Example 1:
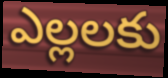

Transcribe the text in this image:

ఎల్లలకు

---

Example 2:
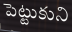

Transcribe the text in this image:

పెట్టుకుని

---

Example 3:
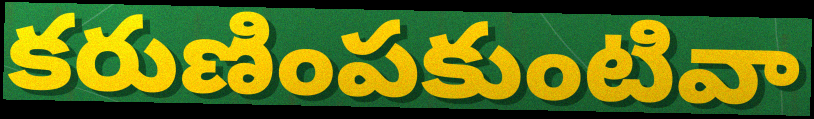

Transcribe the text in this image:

కరుణింపకుంటివా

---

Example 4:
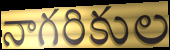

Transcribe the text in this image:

నాగరికుల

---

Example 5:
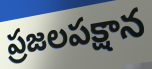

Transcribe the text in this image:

ప్రజలపక్షాన